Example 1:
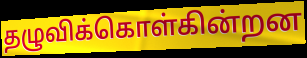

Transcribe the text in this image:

தழுவிக்கொள்கின்றன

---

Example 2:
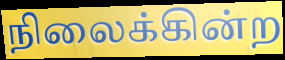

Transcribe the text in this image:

நிலைக்கின்ற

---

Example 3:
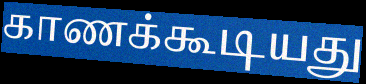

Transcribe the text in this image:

காணக்கூடியது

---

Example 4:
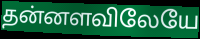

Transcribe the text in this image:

தன்னளவிலேயே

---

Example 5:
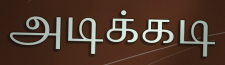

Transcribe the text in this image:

அடிக்கடி